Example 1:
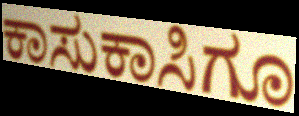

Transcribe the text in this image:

ಕಾಸುಕಾಸಿಗೂ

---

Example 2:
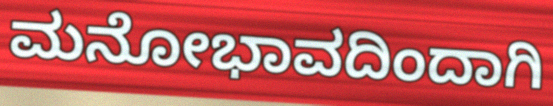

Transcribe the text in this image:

ಮನೋಭಾವದಿಂದಾಗಿ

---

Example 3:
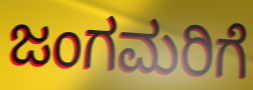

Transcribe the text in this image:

ಜಂಗಮರಿಗೆ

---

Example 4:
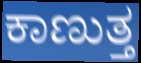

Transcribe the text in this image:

ಕಾಣುತ್ತ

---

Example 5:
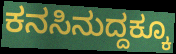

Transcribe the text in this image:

ಕನಸಿನುದ್ದಕ್ಕೂ